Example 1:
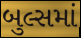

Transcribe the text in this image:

બુલ્સમાં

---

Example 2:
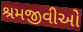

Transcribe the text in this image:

શ્રમજીવીઓ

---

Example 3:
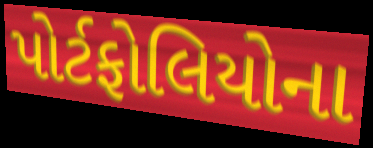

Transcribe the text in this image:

પોર્ટફોલિયોના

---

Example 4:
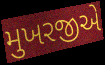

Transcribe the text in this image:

મુખરજીએ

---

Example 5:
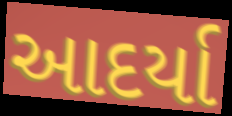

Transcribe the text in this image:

આદર્યા